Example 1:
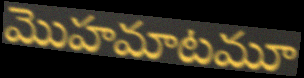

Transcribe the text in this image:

మొహమాటమూ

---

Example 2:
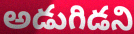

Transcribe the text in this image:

అడుగిడని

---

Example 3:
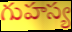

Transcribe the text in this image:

గుహస్య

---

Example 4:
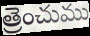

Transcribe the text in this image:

త్రెంచుము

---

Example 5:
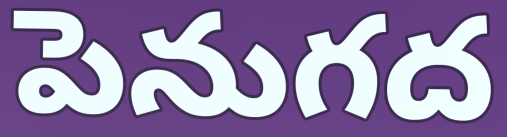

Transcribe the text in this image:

పెనుగద